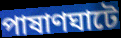
পাষাণঘাটে